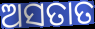
ଅସତାତ